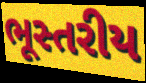
ભૂસ્તરીય